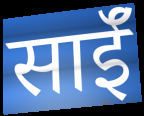
साईॅ